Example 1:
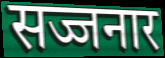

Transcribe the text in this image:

सज्जनार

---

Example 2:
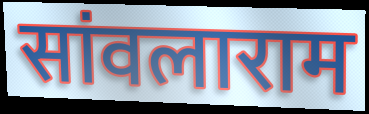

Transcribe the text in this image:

सांवलाराम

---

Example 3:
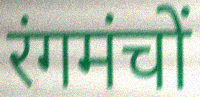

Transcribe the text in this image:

रंगमंचों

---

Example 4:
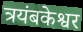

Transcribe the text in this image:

त्रयंबकेश्वर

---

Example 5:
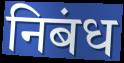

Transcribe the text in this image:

निबंध